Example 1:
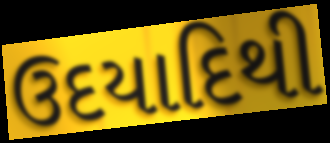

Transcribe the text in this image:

ઉદયાદિથી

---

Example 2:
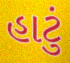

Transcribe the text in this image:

હાટું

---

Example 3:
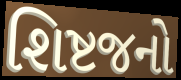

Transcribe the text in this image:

શિષ્ટજનો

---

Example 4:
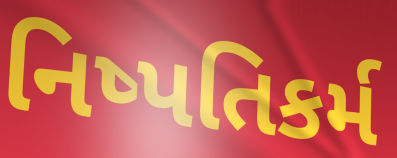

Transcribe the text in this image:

નિષ્પતિકર્મ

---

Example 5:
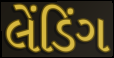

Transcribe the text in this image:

લેંડિંગ